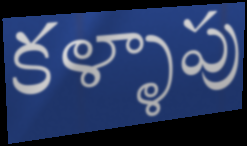
కళ్ళాపు